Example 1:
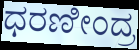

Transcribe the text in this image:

ಧರಣೀಂದ್ರ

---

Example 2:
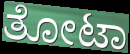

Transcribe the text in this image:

ತೋಟಾ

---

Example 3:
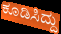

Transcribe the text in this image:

ಕೂಡಿಸಿದ್ದು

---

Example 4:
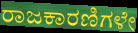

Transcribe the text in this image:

ರಾಜಕಾರಣಿಗಳೇ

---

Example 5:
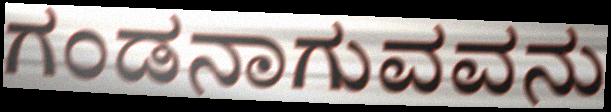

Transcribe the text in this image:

ಗಂಡನಾಗುವವನು